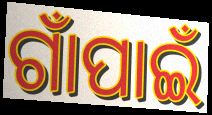
ଗାଁପାଇଁ